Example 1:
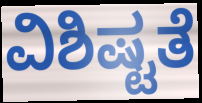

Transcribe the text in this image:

ವಿಶಿಷ್ಟತೆ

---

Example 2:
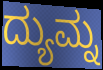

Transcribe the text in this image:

ದ್ಯುಮ್ನ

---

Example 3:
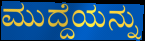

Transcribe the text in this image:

ಮುದ್ದೆಯನ್ನು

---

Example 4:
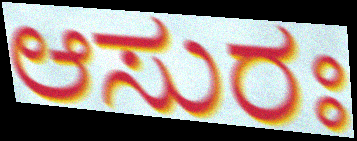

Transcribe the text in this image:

ಆಸುರಃ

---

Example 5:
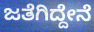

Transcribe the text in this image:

ಜತೆಗಿದ್ದೇನೆ